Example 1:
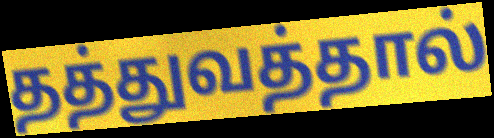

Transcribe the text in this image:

தத்துவத்தால்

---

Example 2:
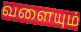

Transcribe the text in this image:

வளையும்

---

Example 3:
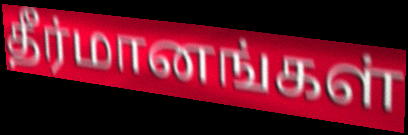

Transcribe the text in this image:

தீர்மானங்கள்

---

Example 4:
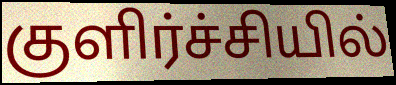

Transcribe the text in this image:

குளிர்ச்சியில்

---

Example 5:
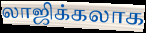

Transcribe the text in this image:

லாஜிக்கலாக